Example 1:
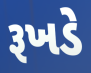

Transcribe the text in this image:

રૂખડે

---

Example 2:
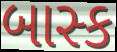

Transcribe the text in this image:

બાસ્ક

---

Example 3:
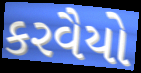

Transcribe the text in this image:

કરવૈયો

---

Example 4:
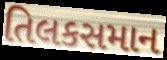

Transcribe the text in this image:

તિલકસમાન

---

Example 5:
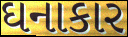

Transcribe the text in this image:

ઘનાકાર